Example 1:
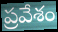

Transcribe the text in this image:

ప్రవేశం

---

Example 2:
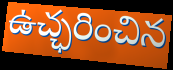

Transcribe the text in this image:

ఉచ్ఛరించిన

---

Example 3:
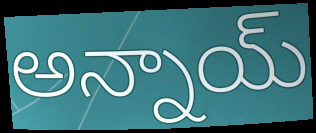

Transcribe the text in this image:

అన్నాయ్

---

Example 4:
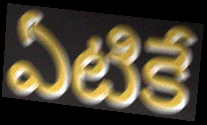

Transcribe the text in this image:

ఏటికే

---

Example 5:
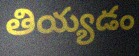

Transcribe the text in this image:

తియ్యడం